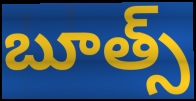
బూత్స్